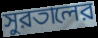
সুরতালের